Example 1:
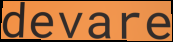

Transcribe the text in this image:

devare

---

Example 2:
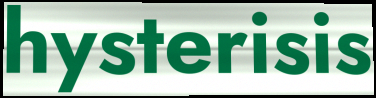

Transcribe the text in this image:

hysterisis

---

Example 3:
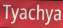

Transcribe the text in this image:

Tyachya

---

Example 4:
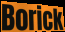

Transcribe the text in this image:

Borick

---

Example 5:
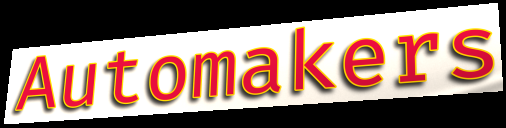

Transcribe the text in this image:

Automakers